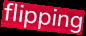
flipping